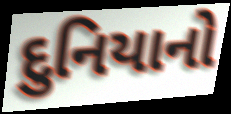
દુનિયાનો